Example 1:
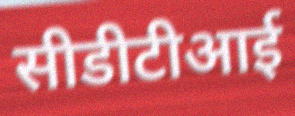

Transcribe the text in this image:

सीडीटीआई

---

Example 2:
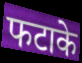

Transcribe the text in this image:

फटाके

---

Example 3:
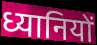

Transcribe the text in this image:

ध्यानियों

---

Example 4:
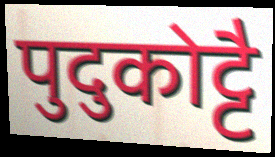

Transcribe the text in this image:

पुदुकोट्टै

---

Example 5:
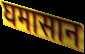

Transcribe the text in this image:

घमासान